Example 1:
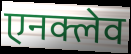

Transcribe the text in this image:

एनक्लेव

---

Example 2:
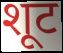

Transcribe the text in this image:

शूट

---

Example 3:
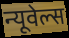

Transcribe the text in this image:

न्यूवेल्स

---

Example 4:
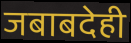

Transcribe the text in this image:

जबाबदेही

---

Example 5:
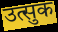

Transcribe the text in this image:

उत्‍सुक